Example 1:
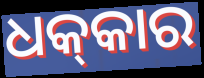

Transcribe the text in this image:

ଧକ୍‍କାର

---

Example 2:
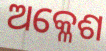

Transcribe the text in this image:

ଅକ୍ଳେଶ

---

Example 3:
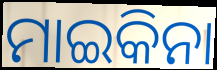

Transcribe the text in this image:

ମାଇକିନା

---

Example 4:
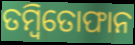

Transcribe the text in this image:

ତମ୍ବିତୋଫାନ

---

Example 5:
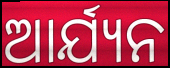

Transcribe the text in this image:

ଆର୍ଯ୍ୟନ